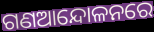
ଗଣଆନ୍ଦୋଳନରେ